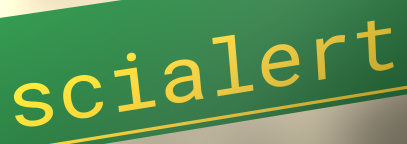
scialert